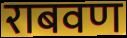
राबवण